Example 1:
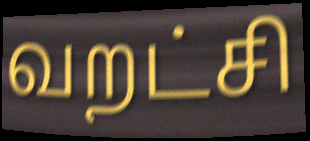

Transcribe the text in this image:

வறட்சி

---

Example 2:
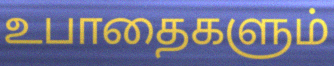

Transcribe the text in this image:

உபாதைகளும்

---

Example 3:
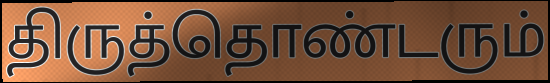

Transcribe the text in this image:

திருத்தொண்டரும்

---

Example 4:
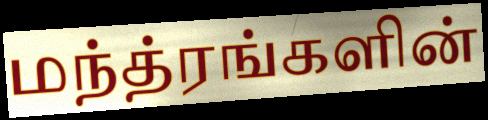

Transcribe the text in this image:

மந்த்ரங்களின்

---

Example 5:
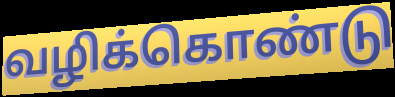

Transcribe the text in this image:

வழிக்கொண்டு